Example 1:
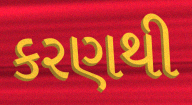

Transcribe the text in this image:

કરણથી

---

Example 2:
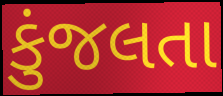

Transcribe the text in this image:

કુંજલતા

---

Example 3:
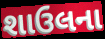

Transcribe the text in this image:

શાઉલના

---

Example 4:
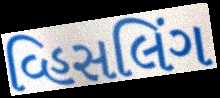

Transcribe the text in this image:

વ્હિસલિંગ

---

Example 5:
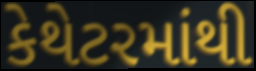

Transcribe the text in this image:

કેથેટરમાંથી